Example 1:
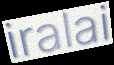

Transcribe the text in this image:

iralai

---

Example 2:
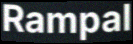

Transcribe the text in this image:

Rampal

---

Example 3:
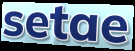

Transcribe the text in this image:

setae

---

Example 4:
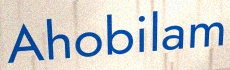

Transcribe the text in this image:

Ahobilam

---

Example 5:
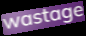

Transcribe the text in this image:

wastage